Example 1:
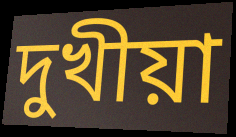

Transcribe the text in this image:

দুখীয়া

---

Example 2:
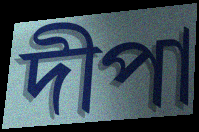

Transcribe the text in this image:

দীপা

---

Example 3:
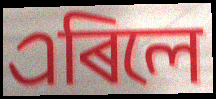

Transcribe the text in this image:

এৰিলে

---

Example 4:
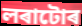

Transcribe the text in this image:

লৰাটোৰ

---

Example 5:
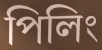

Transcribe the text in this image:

পিলিং